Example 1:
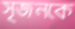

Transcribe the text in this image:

সৃজনকে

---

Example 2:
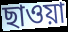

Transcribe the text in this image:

ছাওয়া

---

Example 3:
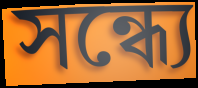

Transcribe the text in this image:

সন্ধ্যে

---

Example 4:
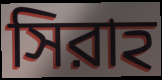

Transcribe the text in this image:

সিরাহ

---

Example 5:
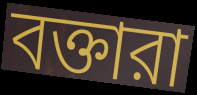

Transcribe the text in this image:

বক্তারা